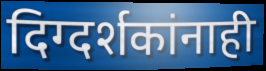
दिग्दर्शकांनाही